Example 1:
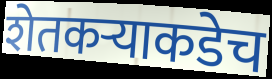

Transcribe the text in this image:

शेतकऱ्याकडेच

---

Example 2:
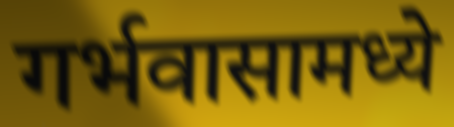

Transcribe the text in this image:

गर्भवासामध्ये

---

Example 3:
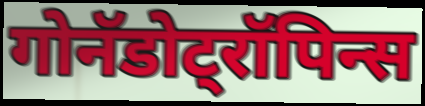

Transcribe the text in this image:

गोनॅडोट्रॉपिन्स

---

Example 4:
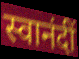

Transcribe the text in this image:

स्वानंदीं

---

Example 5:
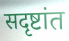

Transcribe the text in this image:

सदृष्टांत